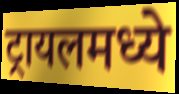
ट्रायलमध्ये